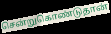
சென்றுகொண்டுதான்